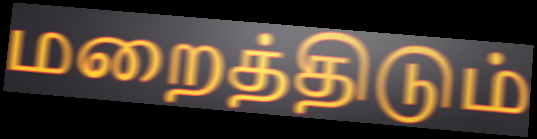
மறைத்திடும்